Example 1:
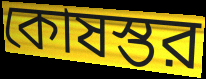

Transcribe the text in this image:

কোষস্তর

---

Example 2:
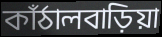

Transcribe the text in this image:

কাঁঠালবাড়িয়া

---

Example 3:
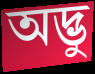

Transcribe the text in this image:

অদ্ভু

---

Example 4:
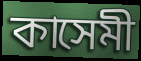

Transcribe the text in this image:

কাসেমী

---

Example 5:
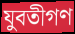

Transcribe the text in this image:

যুবতীগণ